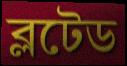
ব্লটেড